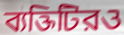
ব্যক্তিটিরও